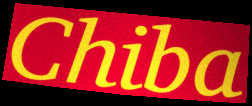
Chiba